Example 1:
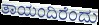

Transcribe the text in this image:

ತಾಯಂದಿರೆಂದು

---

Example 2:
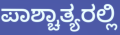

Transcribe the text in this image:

ಪಾಶ್ಚಾತ್ಯರಲ್ಲಿ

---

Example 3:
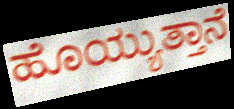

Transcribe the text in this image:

ಹೊಯ್ಯುತ್ತಾನೆ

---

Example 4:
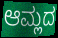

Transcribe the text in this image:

ಆಮ್ಲದ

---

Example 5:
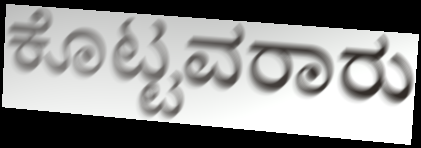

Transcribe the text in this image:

ಕೊಟ್ಟವರಾರು